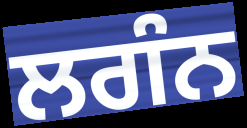
ਲਗੰਨ